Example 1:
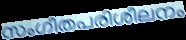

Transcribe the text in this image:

സംഗീതപരിശീലനം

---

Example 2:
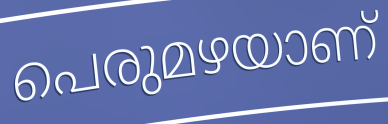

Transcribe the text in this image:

പെരുമഴയാണ്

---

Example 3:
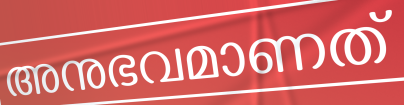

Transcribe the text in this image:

അനുഭവമാണത്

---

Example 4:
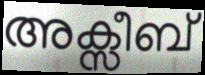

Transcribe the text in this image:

അക്സീബ്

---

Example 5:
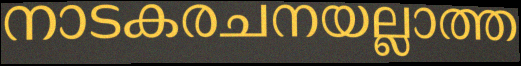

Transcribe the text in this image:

നാടകരചനയല്ലാത്ത